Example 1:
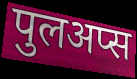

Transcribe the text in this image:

पुलअप्स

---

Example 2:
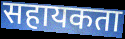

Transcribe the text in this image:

सहायकता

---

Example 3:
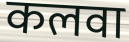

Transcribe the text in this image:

कलवा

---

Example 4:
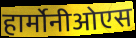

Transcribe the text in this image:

हार्मोनीओएस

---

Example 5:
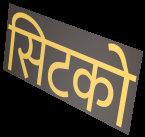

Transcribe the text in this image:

सिटको